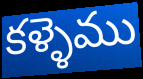
కళ్ళెము